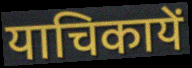
याचिकायें